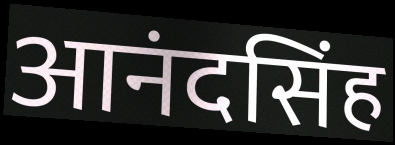
आनंदसिंह